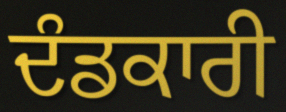
ਦੰਡਕਾਰੀ